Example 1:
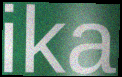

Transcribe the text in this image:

ika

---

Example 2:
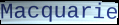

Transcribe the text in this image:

Macquarie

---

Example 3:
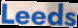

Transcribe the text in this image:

Leeds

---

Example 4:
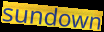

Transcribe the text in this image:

sundown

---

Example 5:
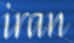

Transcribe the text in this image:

iran